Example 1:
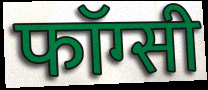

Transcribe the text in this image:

फॉग्सी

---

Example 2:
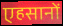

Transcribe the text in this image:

एहसानों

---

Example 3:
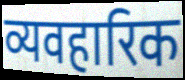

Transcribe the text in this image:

व्यवहारिक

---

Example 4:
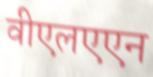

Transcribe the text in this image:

वीएलएएन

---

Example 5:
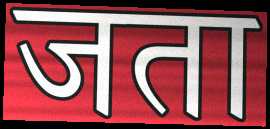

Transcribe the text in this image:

जता